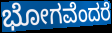
ಭೋಗವೆಂದರೆ